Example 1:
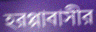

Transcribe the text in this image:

হরপ্পাবাসীর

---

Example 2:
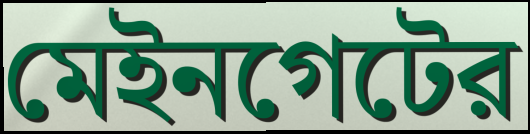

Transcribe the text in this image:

মেইনগেটের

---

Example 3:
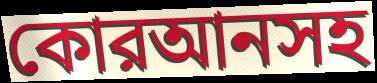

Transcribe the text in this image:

কোরআনসহ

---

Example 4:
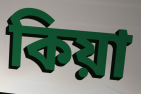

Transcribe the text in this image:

কিয়া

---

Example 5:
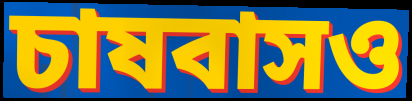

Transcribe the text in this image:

চাষবাসও